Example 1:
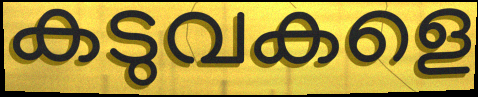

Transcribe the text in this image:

കടുവകളെ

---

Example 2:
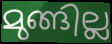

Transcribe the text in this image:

മുങ്ങില്ല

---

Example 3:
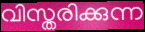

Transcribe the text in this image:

വിസ്തരിക്കുന്ന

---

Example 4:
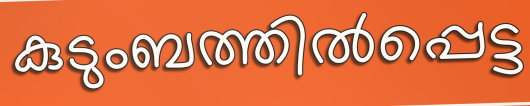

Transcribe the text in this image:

കുടുംബത്തിൽപ്പെട്ട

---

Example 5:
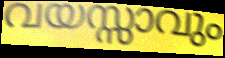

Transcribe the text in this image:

വയസ്സാവും